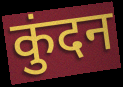
कुंदन